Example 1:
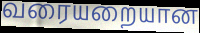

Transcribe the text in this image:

வரையறையான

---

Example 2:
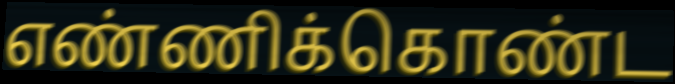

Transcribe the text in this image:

எண்ணிக்கொண்ட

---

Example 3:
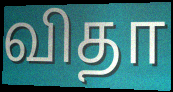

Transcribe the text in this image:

விதா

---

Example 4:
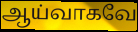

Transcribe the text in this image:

ஆய்வாகவே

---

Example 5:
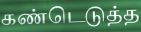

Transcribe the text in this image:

கண்டெடுத்த